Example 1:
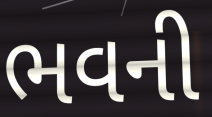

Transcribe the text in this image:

ભવની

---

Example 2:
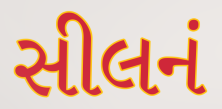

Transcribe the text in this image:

સીલનં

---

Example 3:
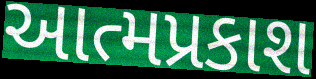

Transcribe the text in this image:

આત્મપ્રકાશ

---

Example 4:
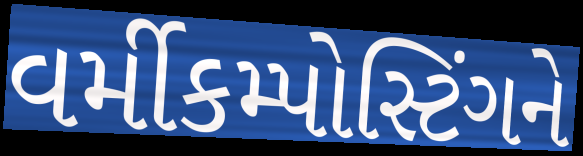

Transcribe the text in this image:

વર્મીકમ્પોસ્ટિંગને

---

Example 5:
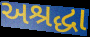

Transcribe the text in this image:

અશ્રદ્ધા